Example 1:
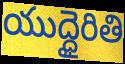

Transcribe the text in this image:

యుద్ధైరితి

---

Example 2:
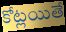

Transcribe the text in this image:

కోట్లయితే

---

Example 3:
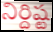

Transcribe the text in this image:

నిర్దిష్ట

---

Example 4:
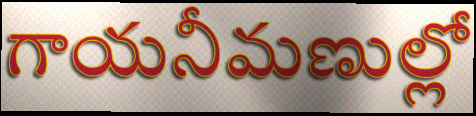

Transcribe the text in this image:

గాయనీమణుల్లో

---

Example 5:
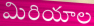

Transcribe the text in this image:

మిరియాల